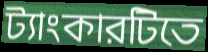
ট্যাংকারটিতে